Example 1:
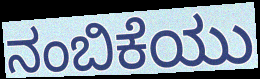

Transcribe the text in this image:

ನಂಬಿಕೆಯು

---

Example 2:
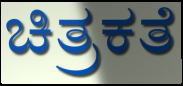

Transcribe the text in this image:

ಚಿತ್ರಕತೆ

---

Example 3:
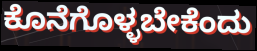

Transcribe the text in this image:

ಕೊನೆಗೊಳ್ಳಬೇಕೆಂದು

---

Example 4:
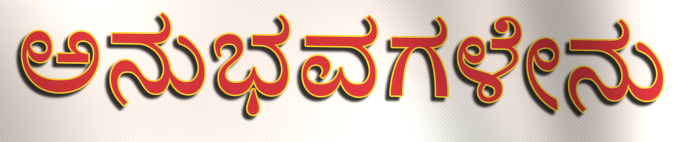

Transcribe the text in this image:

ಅನುಭವಗಳೇನು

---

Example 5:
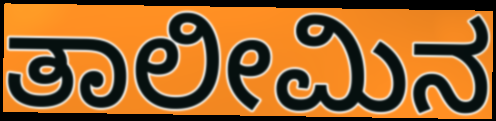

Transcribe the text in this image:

ತಾಲೀಮಿನ